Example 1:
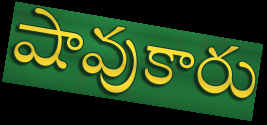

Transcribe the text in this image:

షావుకారు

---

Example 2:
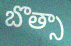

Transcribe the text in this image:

బొత్సా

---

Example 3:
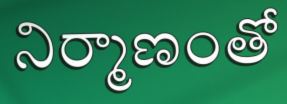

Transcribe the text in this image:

నిర్మాణంతో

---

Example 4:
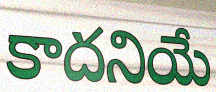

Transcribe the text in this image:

కాదనియే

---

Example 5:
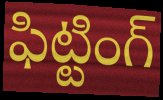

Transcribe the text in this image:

ఫిట్టింగ్